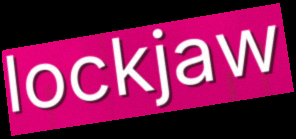
lockjaw